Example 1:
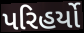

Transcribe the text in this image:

પરિહર્યો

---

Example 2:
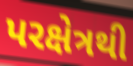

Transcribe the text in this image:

પરક્ષેત્રથી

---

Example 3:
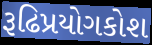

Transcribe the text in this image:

રૂઢિપ્રયોગકોશ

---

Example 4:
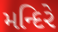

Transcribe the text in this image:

મન્દિરે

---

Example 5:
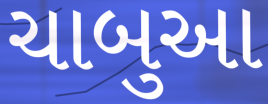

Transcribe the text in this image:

ચાબુઆ